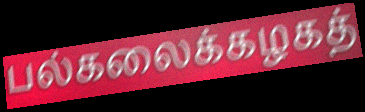
பல்கலைக்கழகத்